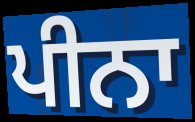
ਪੀਨਾ